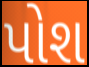
પોશ